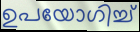
ഉപയോഗിച്ച്